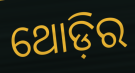
ଥୋଡ଼ିର